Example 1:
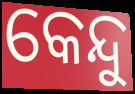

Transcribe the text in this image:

କେନ୍ଦୁ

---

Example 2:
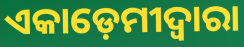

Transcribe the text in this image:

ଏକାଡ଼େମୀଦ୍ଵାରା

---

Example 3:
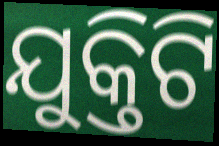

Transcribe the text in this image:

ଯୁକ୍ତିଟି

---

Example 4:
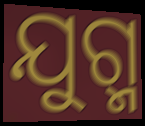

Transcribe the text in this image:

ଯୁଗ୍ମ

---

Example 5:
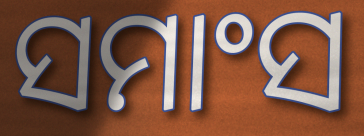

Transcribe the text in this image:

ସମାଂସ